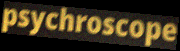
psychroscope